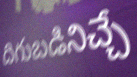
దిగుబడినిచ్చే